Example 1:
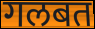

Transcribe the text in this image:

गलबत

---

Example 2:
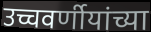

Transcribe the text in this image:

उच्चवर्णीयांच्या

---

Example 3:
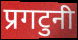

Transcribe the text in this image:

प्रगटुनी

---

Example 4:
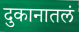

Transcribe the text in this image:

दुकानातलं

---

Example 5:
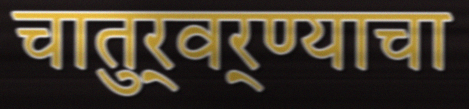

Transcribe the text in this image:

चातुर्वर्ण्याचा